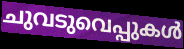
ചുവടുവെപ്പുകൾ